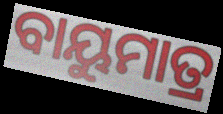
ବାୟୁମାତ୍ର